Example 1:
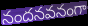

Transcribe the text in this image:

నందనవనంగా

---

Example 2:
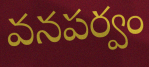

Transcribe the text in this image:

వనపర్వం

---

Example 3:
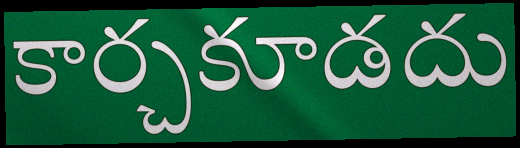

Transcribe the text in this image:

కార్చకూడదు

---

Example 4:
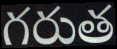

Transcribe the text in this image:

గరుత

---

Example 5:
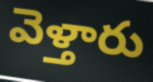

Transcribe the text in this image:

వెళ్తారు